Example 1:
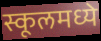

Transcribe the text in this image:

स्कूलमध्ये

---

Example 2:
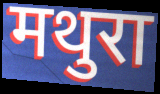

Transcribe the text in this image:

मथुरा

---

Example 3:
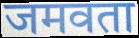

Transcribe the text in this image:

जमवता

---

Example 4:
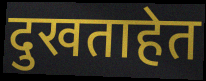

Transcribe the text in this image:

दुखताहेत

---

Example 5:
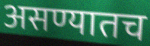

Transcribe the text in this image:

असण्यातच